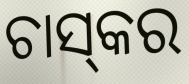
ଚାସ୍‌କର